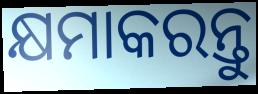
କ୍ଷମାକରନ୍ତୁ